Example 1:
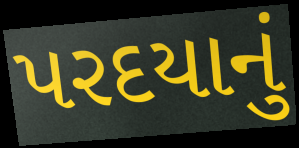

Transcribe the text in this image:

પરદયાનું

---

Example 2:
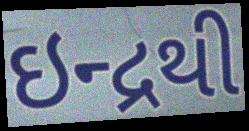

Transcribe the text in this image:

ઇન્દ્રથી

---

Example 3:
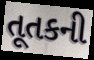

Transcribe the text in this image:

તૂતકની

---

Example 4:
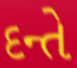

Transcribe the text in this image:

દન્તે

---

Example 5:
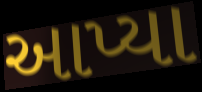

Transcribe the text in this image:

આપ્યા